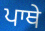
ਪਾਥੇ